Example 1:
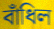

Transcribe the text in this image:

বাঁধিল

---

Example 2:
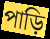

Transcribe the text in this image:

পাড়ি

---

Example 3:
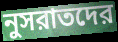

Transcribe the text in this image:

নুসরাতদের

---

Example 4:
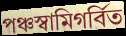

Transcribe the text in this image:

পঞ্চস্বামিগর্বিত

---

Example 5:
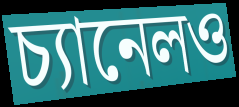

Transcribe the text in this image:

চ্যানেলও